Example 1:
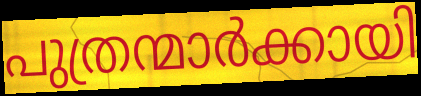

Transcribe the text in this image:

പുത്രന്മാർക്കായി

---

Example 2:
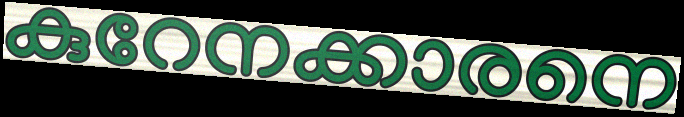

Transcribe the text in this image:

കുറേനക്കാരനെ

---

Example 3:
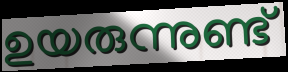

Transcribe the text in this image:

ഉയരുന്നുണ്ട്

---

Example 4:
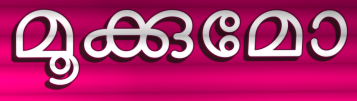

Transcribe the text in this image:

മൂക്കുമോ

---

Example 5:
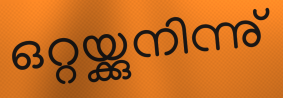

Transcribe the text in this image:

ഒറ്റയ്ക്കുനിന്നു്